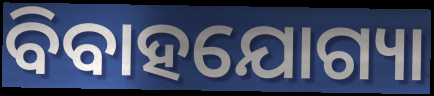
ବିବାହଯୋଗ୍ୟା